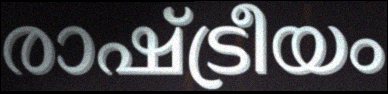
രാഷ്ട്രീയം